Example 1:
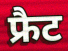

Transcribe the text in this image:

फ्रैट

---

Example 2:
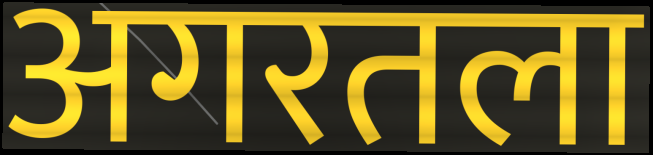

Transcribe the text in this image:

अगरतला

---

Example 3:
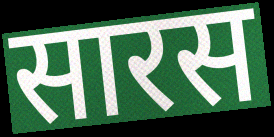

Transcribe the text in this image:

सारस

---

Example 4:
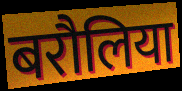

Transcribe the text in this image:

बरौलिया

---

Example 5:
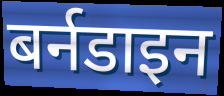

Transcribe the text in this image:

बर्नडाइन